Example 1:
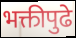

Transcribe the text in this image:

भक्तीपुढे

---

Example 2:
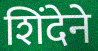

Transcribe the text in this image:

शिंदेने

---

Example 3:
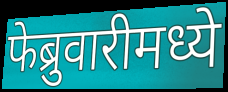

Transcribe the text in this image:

फेब्रुवारीमध्ये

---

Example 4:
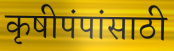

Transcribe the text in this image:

कृषीपंपांसाठी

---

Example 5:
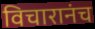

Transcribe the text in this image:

विचारानंच